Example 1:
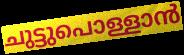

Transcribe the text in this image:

ചുട്ടുപൊള്ളാൻ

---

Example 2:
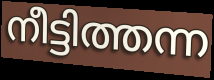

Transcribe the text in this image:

നീട്ടിത്തന്ന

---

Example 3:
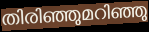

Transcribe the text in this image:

തിരിഞ്ഞുമറിഞ്ഞു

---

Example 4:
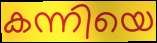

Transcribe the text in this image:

കന്നിയെ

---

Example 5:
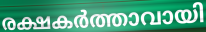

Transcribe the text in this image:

രക്ഷകർത്താവായി